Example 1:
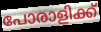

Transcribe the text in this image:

പോരാളിക്ക്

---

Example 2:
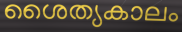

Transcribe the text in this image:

ശൈത്യകാലം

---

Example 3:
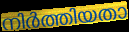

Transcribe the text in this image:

നിർത്തിയതാ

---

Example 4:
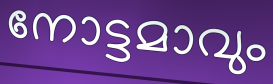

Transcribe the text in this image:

നോട്ടമാവും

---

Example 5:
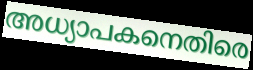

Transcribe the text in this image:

അധ്യാപകനെതിരെ